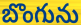
బొంగును